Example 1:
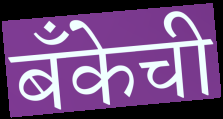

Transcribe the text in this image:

बँकेची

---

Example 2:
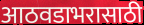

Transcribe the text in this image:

आठवडाभरासाठी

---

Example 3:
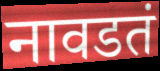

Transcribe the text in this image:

नावडतं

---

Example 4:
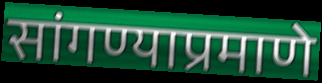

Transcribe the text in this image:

सांगण्याप्रमाणे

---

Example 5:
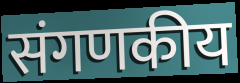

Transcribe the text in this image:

संगणकीय